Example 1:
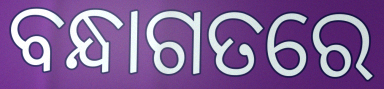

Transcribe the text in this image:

ବନ୍ଧାଗତରେ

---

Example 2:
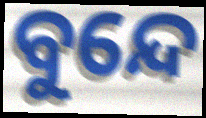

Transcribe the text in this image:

ବୁନ୍ଦେ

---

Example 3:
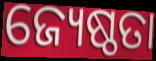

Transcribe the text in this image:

ଜ୍ୟେଷ୍ଠତା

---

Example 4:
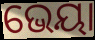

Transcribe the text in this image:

ଭେୟା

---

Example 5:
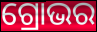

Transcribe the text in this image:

ଗ୍ରୋଭର